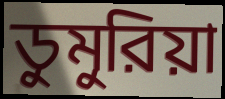
ডুমুরিয়া